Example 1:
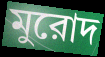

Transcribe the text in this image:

মুরোদ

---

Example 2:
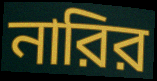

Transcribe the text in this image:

নারির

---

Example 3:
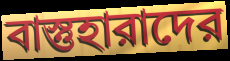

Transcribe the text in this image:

বাস্তুহারাদের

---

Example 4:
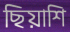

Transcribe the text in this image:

ছিয়াশি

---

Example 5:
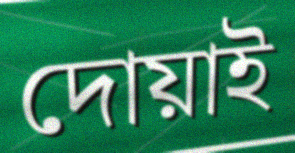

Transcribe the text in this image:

দোয়াই